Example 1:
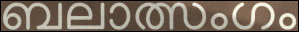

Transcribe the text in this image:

ബലാത്സംഗം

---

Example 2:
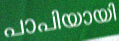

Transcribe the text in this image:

പാപിയായി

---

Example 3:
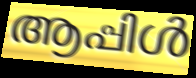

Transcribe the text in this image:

ആപ്പിൾ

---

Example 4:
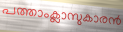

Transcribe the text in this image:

പത്താംക്ലാസുകാരൻ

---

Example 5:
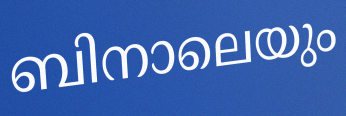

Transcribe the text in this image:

ബിനാലെയും